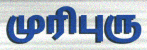
முரிபுரு